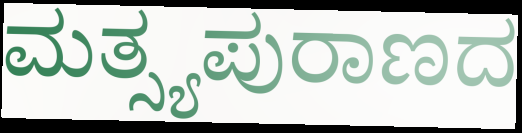
ಮತ್ಸ್ಯಪುರಾಣದ